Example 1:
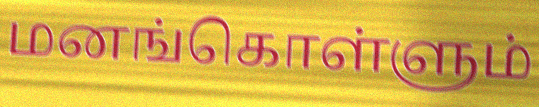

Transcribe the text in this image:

மனங்கொள்ளும்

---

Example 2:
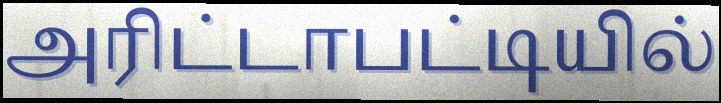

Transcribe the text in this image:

அரிட்டாபட்டியில்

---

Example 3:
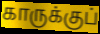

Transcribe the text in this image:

காருக்குப்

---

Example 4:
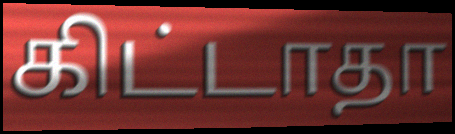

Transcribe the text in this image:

கிட்டாதா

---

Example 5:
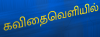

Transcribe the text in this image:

கவிதைவெளியில்